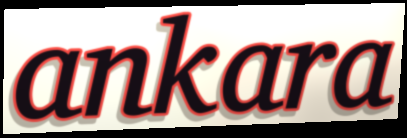
ankara